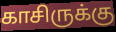
காசிருக்கு